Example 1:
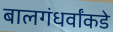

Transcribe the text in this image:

बालगंधर्वांकडे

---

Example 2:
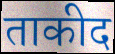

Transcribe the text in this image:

ताकीद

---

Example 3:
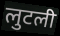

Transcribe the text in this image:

लुटली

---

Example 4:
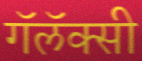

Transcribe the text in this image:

गॅलॅक्सी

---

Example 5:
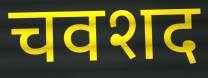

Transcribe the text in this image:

चवशद